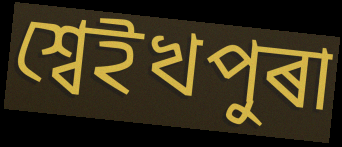
শ্বেইখপুৰা